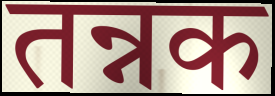
तन्नक